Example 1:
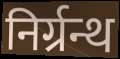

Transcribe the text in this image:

निर्ग्रन्थ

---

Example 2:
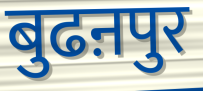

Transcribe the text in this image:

बुढऩपुर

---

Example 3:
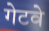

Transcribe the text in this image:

गेटवे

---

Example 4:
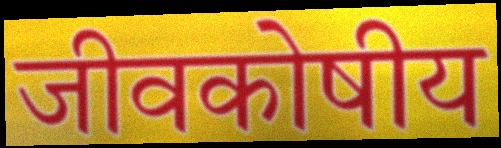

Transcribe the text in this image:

जीवकोषीय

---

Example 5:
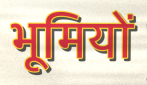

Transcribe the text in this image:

भूमियों